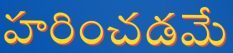
హరించడమే